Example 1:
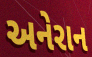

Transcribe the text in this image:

અનેરાન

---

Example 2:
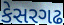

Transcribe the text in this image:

કેસરગઢ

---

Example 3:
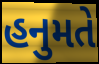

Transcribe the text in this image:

હનુમતે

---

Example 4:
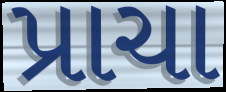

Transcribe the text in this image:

પ્રાચા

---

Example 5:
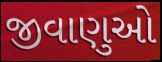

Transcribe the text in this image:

જીવાણુઓ